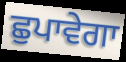
ਛੁਪਾਵੇਗਾ